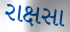
રાક્ષસા